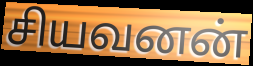
சியவனன்